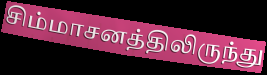
சிம்மாசனத்திலிருந்து